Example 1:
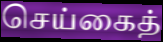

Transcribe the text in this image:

செய்கைத்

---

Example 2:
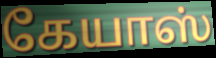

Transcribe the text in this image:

கேயாஸ்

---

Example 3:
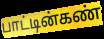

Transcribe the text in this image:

பாட்டின்கண்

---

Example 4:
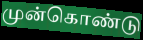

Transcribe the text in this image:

முன்கொண்டு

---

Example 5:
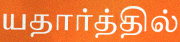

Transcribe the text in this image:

யதார்த்தில்